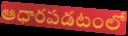
ఆధారపడటంలో